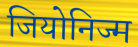
जियोनिज्म